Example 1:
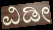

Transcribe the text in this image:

ವಿಡೀ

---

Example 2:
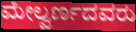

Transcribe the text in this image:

ಮೇಲ್ವರ್ಣದವರು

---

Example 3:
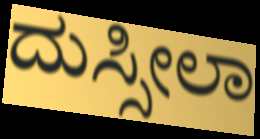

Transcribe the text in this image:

ದುಸ್ಸೀಲಾ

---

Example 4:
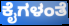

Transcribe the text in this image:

ಕೈಗಳಂತೆ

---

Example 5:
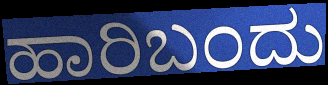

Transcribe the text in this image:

ಹಾರಿಬಂದು